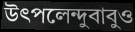
উৎপলেন্দুবাবুও